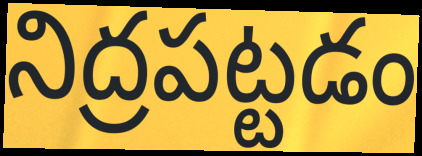
నిద్రపట్టడం